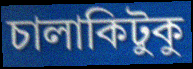
চালাকিটুকু